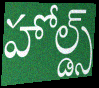
హోల్డ్స్